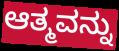
ಆತ್ಮವನ್ನು